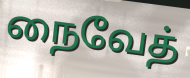
நைவேத்